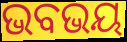
ଭବଭୟ